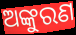
ଅଙ୍କୁରଣ